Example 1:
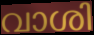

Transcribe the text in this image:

വാശി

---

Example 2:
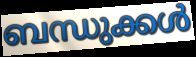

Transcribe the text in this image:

ബന്ധുക്കൾ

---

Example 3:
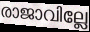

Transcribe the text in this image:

രാജാവില്ലേ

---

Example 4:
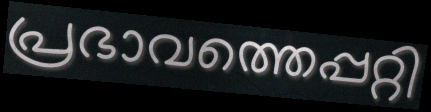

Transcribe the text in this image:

പ്രഭാവത്തെപ്പറ്റി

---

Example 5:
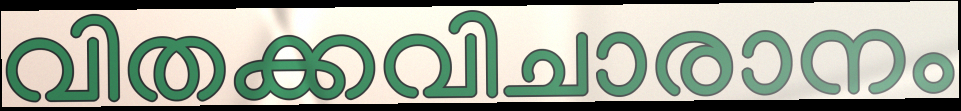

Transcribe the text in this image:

വിതക്കവിചാരാനം